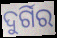
ଦୁର୍ଗିର